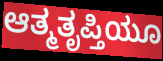
ಆತ್ಮತೃಪ್ತಿಯೂ